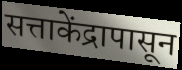
सत्ताकेंद्रापासून